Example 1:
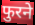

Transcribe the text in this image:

फुरने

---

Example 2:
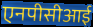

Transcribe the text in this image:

एनपीसीआई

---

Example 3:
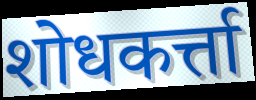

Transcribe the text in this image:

शोधकर्त्ता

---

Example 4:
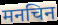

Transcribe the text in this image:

मनचिन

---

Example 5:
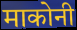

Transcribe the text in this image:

माकोनी